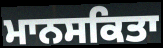
ਮਾਨਸਕਿਤਾ